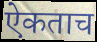
ऐकताच